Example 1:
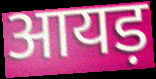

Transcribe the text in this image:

आयड़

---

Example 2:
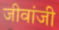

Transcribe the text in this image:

जीवांजी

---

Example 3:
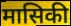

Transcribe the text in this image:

मासिकी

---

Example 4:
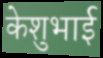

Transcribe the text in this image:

केशुभाई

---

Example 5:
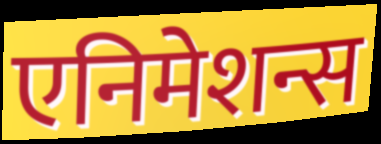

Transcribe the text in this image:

एनिमेशन्स